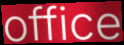
office